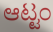
ಆಟ್ಟಂ